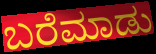
ಬರೆಮಾಡು